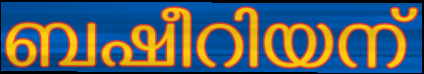
ബഷീറിയന്